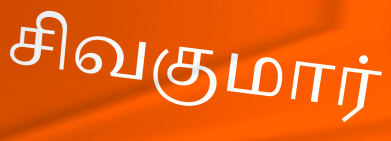
சிவகுமார்